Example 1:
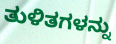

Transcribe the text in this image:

ತುಳಿತಗಳನ್ನು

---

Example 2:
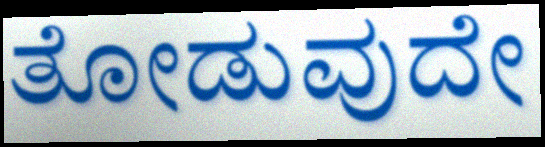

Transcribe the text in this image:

ತೋಡುವುದೇ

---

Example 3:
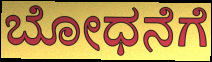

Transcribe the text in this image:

ಬೋಧನೆಗೆ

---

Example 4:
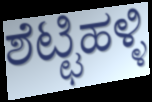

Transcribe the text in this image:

ಶೆಟ್ಟಿಹಳ್ಳಿ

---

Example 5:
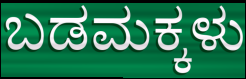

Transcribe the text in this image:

ಬಡಮಕ್ಕಳು